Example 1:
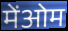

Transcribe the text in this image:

मेंओम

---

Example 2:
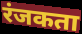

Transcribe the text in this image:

रंजकता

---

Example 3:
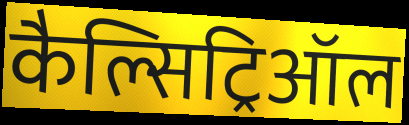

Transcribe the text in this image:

कैल्सिट्रिऑल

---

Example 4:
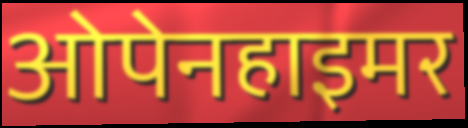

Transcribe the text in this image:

ओपेनहाइमर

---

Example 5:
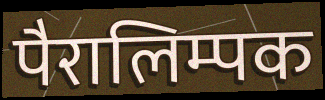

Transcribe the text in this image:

पैरालिम्पक